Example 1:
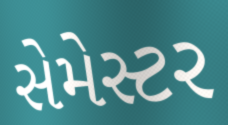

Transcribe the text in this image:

સેમેસ્ટર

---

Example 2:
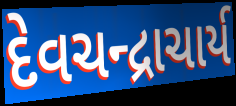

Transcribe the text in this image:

દેવચન્દ્રાચાર્ય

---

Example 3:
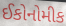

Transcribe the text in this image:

ઈકોનોમીક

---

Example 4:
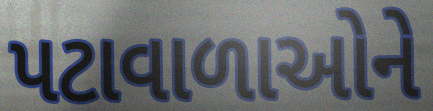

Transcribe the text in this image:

પટાવાળાઓને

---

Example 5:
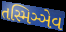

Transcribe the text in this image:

તસ્મિઞ્ઞેવ